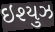
ઇશ્યુઝ